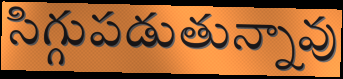
సిగ్గుపడుతున్నావు